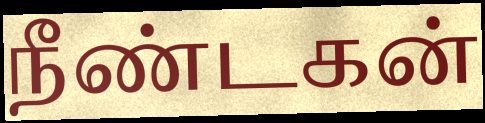
நீண்டகன்